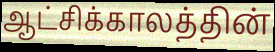
ஆட்சிக்காலத்தின்